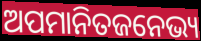
ଅପମାନିତଜନେଭ୍ୟ